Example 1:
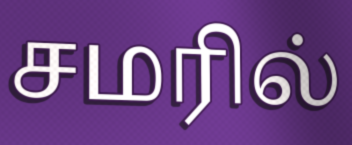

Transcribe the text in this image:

சமரில்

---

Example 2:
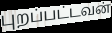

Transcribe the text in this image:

புறப்பட்டவன்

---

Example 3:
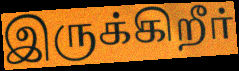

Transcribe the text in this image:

இருக்கிறீர்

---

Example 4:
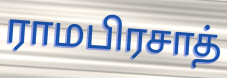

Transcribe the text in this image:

ராமபிரசாத்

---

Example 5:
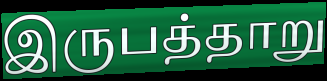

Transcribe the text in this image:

இருபத்தாறு